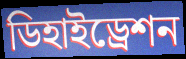
ডিহাইড্রেশন